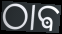
ଠାଵ